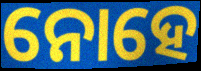
ନୋହେ